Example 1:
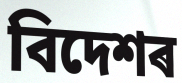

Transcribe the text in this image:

বিদেশৰ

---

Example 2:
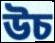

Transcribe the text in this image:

উচ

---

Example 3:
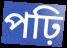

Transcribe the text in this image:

পঢ়ি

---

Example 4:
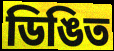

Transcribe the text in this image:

ডিঙিত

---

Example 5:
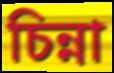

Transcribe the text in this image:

চিন্না